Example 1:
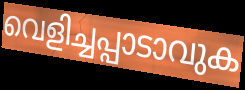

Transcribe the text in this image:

വെളിച്ചപ്പാടാവുക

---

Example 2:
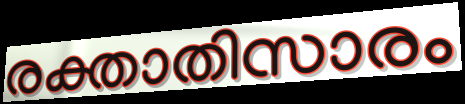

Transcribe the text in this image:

രക്താതിസാരം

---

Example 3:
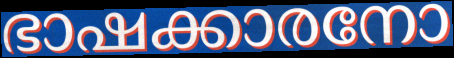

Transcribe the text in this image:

ഭാഷക്കാരനോ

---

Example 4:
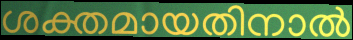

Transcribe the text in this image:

ശക്തമായതിനാൽ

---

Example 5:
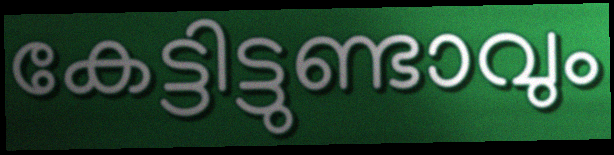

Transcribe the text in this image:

കേട്ടിട്ടുണ്ടാവും